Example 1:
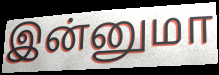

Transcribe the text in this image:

இன்னுமா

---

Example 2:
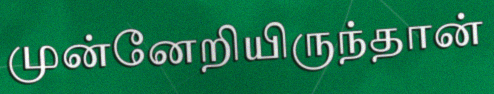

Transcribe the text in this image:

முன்னேறியிருந்தான்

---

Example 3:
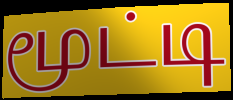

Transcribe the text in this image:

மூட்டி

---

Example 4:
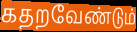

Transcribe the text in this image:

கதறவேண்டும்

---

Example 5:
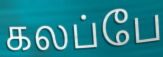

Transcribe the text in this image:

கலப்பே